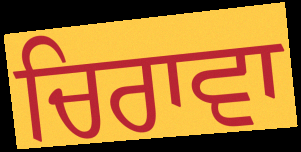
ਚਿਰਾਵਾ